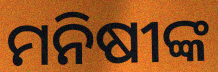
ମନିଷୀଙ୍କ